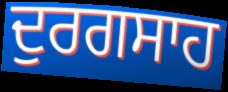
ਦੁਰਗਸਾਹ